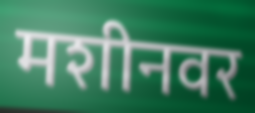
मशीनवर